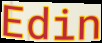
Edin